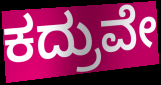
ಕದ್ರುವೇ